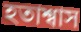
হতাশ্বাস